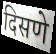
दिसणे